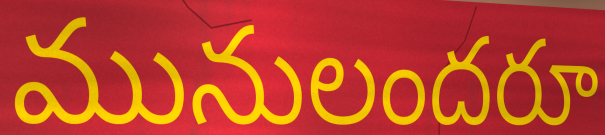
మునులందరూ